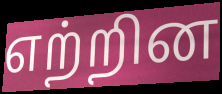
எற்றின